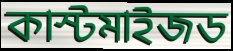
কাস্টমাইজড